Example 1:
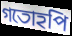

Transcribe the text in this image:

গতোহপি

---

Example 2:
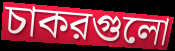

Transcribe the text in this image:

চাকরগুলো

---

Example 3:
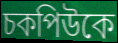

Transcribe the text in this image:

চকপিউকে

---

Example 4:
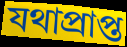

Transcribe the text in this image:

যথাপ্রাপ্ত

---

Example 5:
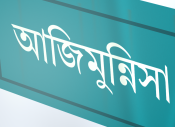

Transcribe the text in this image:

আজিমুন্নিসা